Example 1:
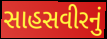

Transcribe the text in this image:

સાહસવીરનું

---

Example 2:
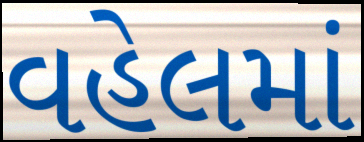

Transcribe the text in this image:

વહેલમાં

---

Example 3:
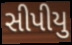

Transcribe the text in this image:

સીપીયુ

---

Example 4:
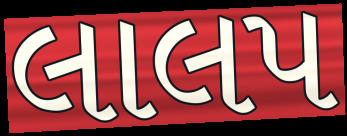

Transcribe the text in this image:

લાલપ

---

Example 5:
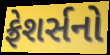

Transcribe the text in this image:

ફ્રેશર્સનો